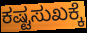
ಕಷ್ಟಸುಖಕ್ಕೆ